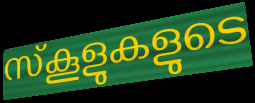
സ്‌കൂളുകളുടെ